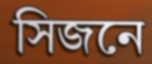
সিজনে